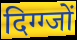
दिग्ग्जों